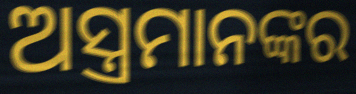
ଅସ୍ତ୍ରମାନଙ୍କର